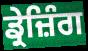
ਡ੍ਰੇਜ਼ਿੰਗ